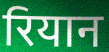
रियान